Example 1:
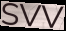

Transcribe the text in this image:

SVV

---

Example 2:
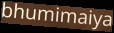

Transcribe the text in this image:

bhumimaiya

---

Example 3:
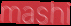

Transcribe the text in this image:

mashi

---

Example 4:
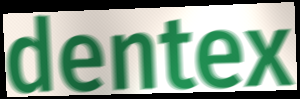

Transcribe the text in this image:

dentex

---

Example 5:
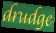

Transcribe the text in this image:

drudge